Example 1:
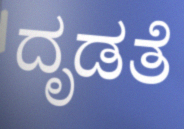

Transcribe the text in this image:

ದೃಡತೆ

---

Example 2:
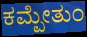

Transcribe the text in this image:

ಕಮ್ಪೇತುಂ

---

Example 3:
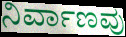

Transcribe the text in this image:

ನಿರ್ವಾಣವು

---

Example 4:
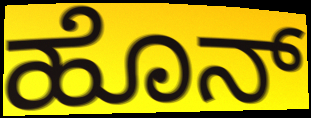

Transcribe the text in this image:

ಹೊನ್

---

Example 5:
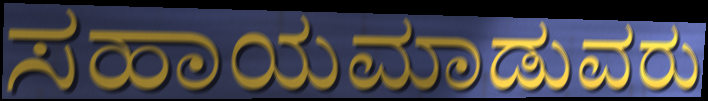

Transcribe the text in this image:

ಸಹಾಯಮಾಡುವರು